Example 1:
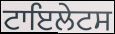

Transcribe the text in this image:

ਟਾਇਲੇਟਸ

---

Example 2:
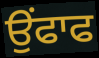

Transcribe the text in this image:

ਉੰਫਾਫ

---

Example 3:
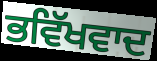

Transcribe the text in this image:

ਭਵਿੱਖਵਾਦ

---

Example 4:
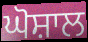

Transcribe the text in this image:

ਘੋਸ਼ਾਲ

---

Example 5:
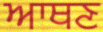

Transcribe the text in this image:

ਆਥਣ